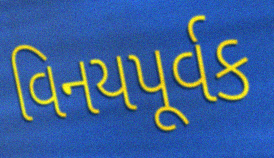
વિનયપૂર્વક